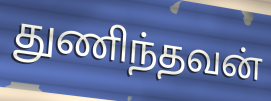
துணிந்தவன்